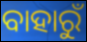
ବାହାରୁଁ